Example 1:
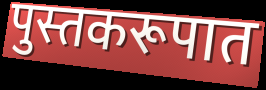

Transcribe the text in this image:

पुस्तकरूपात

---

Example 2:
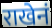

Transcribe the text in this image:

राखेनं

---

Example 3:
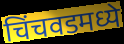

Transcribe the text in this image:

चिंचवडमध्ये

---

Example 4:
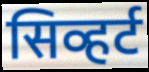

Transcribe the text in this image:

सिव्हर्ट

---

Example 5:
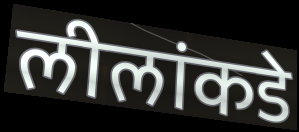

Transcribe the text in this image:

लीलांकडे